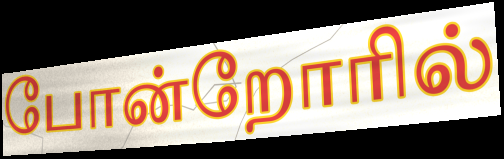
போன்றோரில்